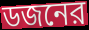
ডজনের